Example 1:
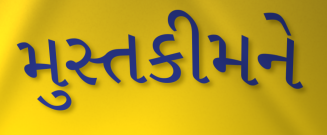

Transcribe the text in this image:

મુસ્તકીમને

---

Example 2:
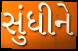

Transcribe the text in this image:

સુંધીને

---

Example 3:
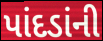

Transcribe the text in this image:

પાંદડાંની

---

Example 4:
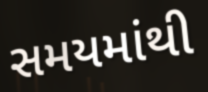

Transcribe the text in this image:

સમયમાંથી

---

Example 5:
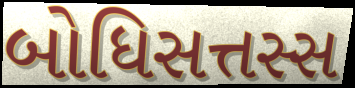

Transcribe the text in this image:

બોધિસત્તસ્સ